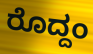
ರೊದ್ದಂ